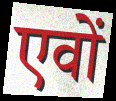
एवों